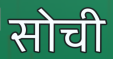
सोची